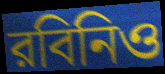
রবিনিও